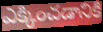
ఎక్కించడానికి